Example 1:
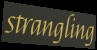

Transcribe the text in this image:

strangling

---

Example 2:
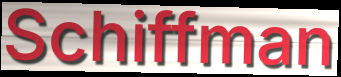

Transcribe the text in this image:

Schiffman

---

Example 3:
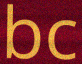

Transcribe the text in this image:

bc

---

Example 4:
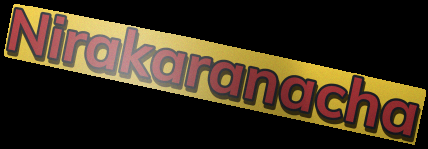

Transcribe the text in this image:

Nirakaranacha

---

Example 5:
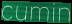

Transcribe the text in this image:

cumin